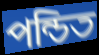
পন্ডিত